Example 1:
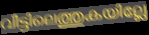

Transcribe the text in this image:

വീട്ടിലെത്തുകയില്ലേ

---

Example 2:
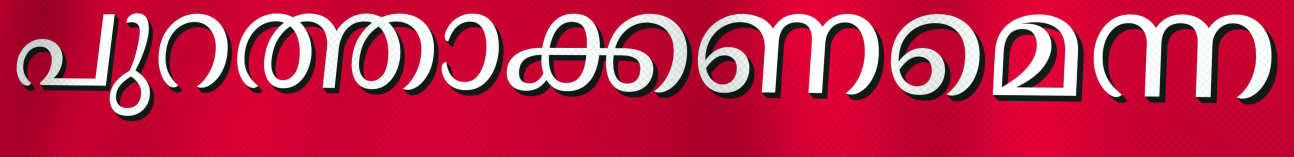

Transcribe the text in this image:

പുറത്താക്കണമെന്ന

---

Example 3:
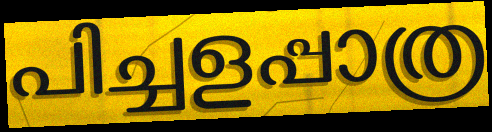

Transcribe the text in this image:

പിച്ചളപ്പാത്ര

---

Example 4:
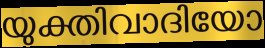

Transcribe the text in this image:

യുക്തിവാദിയോ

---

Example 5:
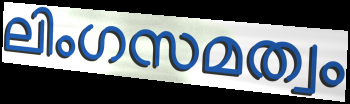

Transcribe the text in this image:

ലിംഗസമത്വം